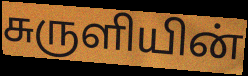
சுருளியின்